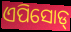
ଏପିସୋଡ୍